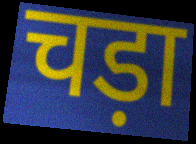
चड़ा